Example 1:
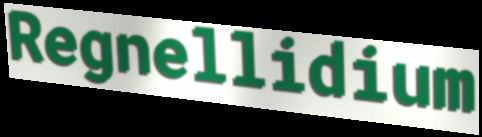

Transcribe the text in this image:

Regnellidium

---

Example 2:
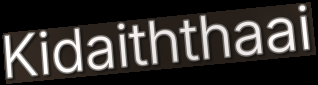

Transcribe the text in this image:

Kidaiththaai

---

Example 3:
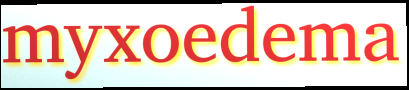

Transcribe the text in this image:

myxoedema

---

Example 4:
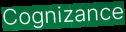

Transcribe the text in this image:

Cognizance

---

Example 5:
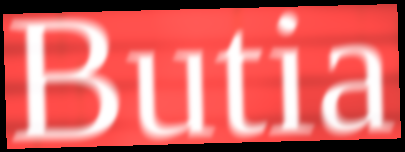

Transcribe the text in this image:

Butia